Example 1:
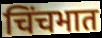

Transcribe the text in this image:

चिंचभात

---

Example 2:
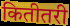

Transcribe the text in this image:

कितीतरी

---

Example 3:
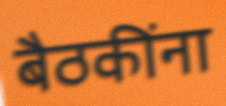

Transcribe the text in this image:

बैठकींना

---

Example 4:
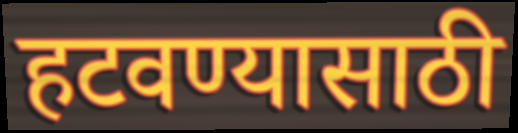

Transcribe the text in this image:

हटवण्यासाठी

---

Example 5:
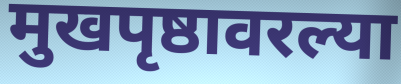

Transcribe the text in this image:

मुखपृष्ठावरल्या